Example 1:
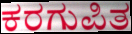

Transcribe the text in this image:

ಕರಗುಪಿತ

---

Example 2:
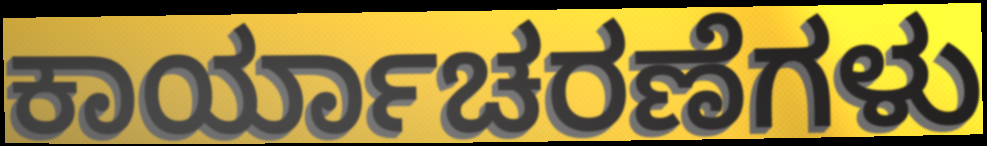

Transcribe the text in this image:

ಕಾರ್ಯಾಚರಣೆಗಳು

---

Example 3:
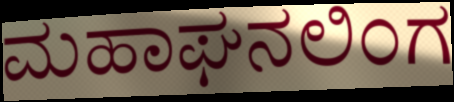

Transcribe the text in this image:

ಮಹಾಘನಲಿಂಗ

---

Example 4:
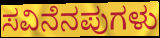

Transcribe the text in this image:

ಸವಿನೆನಪುಗಳು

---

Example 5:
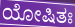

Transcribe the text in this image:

ಯೋಷಿತಃ